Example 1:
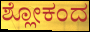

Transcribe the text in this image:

ಶ್ಲೋಕಂದ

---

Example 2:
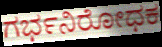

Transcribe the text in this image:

ಗರ್ಭನಿರೋಧಕ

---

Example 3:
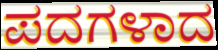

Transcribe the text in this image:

ಪದಗಳಾದ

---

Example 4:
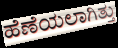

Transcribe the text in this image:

ಹೆಣೆಯಲಾಗಿತ್ತು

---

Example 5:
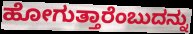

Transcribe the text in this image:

ಹೋಗುತ್ತಾರೆಂಬುದನ್ನು